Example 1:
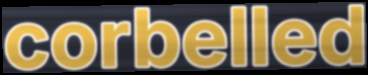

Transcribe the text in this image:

corbelled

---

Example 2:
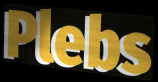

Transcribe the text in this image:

Plebs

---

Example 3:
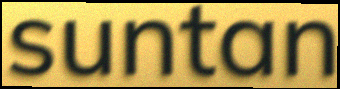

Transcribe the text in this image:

suntan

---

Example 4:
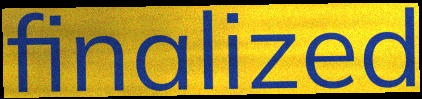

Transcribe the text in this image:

finalized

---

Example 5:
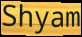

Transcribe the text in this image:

Shyam